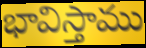
భావిస్తాము